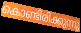
കൊണ്ടിരിക്കുന്നു